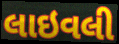
લાઇવલી